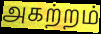
அகற்றம்